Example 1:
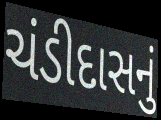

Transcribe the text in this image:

ચંડીદાસનું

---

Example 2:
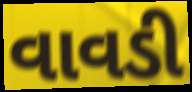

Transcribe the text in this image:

વાવડી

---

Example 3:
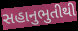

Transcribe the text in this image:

સહાનુભુતીથી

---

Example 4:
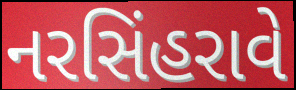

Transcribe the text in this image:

નરસિંહરાવે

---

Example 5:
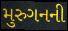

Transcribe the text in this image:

મુરુગનની